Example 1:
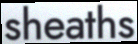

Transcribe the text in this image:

sheaths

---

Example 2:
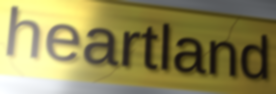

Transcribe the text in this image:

heartland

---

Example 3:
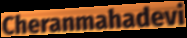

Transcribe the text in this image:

Cheranmahadevi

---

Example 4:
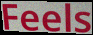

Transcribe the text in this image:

Feels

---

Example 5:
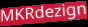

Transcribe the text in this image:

MKRdezign